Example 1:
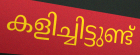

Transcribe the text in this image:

കളിച്ചിട്ടുണ്ട്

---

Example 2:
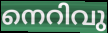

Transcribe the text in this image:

നെറിവു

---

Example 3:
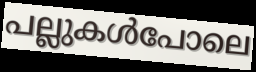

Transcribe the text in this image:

പല്ലുകൾപോലെ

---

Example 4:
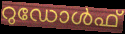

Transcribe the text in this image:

റുഡോൾഫ്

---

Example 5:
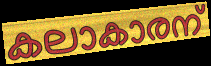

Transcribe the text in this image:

കലാകാരന്